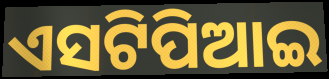
ଏସଟିପିଆଇ